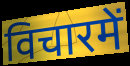
विचारमें